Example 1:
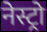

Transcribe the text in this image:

नेस्ट्रो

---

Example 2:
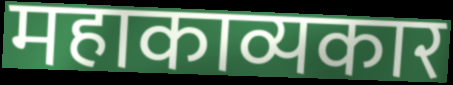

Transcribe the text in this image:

महाकाव्यकार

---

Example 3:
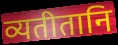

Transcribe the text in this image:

व्यतीतानि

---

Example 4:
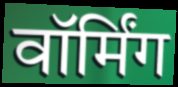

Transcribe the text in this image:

वॉर्मिंग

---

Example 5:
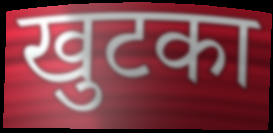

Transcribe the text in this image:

खुटका